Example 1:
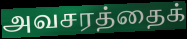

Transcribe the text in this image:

அவசரத்தைக்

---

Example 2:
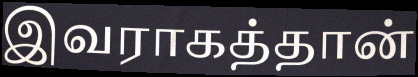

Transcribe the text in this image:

இவராகத்தான்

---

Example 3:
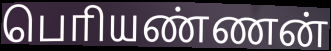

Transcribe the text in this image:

பெரியண்ணன்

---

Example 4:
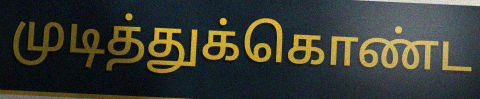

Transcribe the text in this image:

முடித்துக்கொண்ட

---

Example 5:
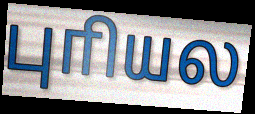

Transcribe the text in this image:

புரியல